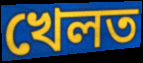
খেলত